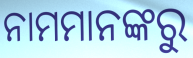
ନାମମାନଙ୍କରୁ